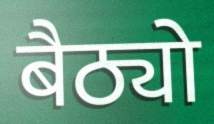
बैठ्यो